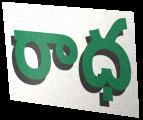
రాధ